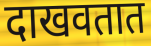
दाखवतात